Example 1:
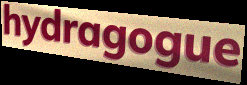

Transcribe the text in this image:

hydragogue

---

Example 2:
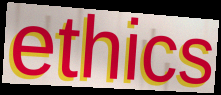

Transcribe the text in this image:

ethics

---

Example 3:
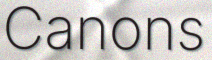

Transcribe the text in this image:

Canons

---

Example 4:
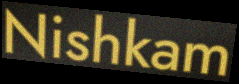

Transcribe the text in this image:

Nishkam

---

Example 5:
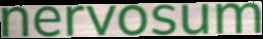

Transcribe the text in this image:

nervosum